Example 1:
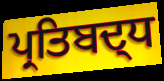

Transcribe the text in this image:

ਪ੍ਰਤਿਬਦ੍ਧ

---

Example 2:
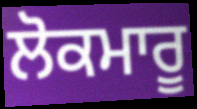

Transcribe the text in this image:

ਲੋਕਮਾਰੂ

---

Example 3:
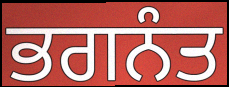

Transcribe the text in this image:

ਭਗਨੰਤ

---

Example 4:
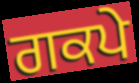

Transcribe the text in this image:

ਗਕਪੇ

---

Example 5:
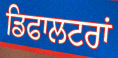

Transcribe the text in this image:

ਡਿਫਾਲਟਰਾਂ